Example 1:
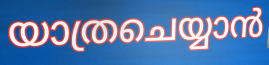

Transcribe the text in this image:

യാത്രചെയ്യാൻ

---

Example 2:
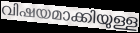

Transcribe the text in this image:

വിഷയമാക്കിയുള്ള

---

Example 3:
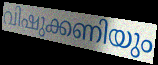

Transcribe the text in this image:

വിഷുക്കണിയും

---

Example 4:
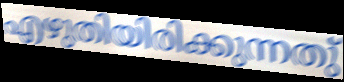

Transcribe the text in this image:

എഴുതിയിരിക്കുന്നതു്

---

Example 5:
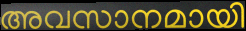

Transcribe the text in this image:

അവസാനമായി